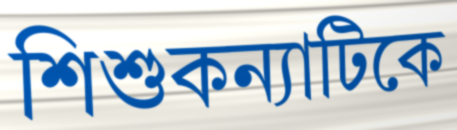
শিশুকন্যাটিকে